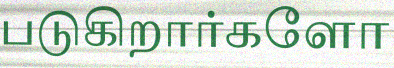
படுகிறார்களோ